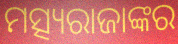
ମତ୍ସ୍ୟରାଜାଙ୍କର